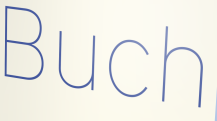
Buch